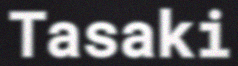
Tasaki